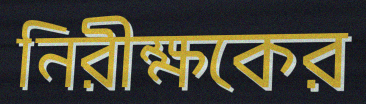
নিরীক্ষকের